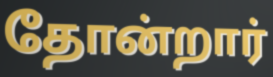
தோன்றார்